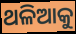
ଥଳିଆକୁ